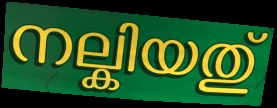
നല്കിയതു്